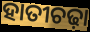
ହାତୀଚଢ଼ା